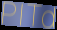
PITd